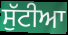
ਸੁੱਟੀਆ